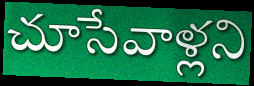
చూసేవాళ్లని